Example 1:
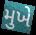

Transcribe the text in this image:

મુખે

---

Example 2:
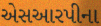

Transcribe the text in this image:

એસઆરપીના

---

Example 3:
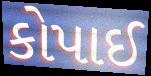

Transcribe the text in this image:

કોપાઈ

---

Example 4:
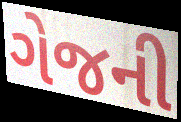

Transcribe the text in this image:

ગેજની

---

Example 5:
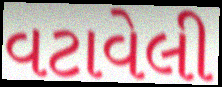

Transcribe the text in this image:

વટાવેલી